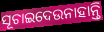
ସୂଚାଇଦେଉନାହାନ୍ତି